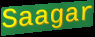
Saagar